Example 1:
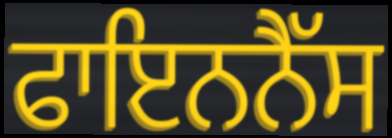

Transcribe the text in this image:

ਫਾਇਨਨੈੱਸ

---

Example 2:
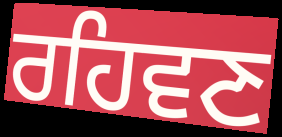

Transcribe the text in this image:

ਰਹਿਵਣ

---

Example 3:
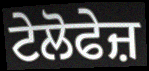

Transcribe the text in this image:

ਟੇਲੋਫੇਜ਼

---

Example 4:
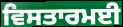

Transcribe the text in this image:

ਵਿਸਤਾਰਮਈ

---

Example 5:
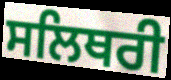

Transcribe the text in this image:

ਸਲਿਥਰੀ